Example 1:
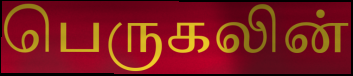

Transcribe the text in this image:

பெருகலின்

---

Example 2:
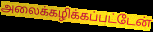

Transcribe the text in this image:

அலைக்கழிக்கப்பட்டேன்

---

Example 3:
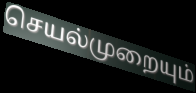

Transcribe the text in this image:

செயல்முறையும்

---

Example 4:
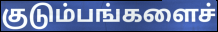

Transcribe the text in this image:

குடும்பங்களைச்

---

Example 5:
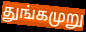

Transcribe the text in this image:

துங்கமுறு